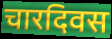
चारदिवस